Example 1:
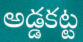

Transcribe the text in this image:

అడ్డకట్ట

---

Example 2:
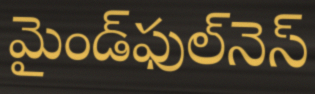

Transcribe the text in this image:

మైండ్‌ఫుల్‌నెస్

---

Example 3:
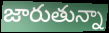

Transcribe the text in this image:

జారుతున్నా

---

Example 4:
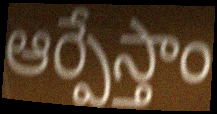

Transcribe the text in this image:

ఆర్పేస్తాం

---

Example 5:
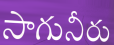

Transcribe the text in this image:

సాగునీరు